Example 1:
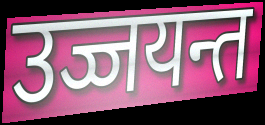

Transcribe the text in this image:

उज्जयन्त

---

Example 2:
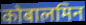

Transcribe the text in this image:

कोबालमिन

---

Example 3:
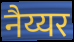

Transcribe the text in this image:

नैय्यर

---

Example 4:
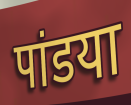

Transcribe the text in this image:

पांडया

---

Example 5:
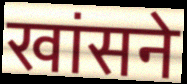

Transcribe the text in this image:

खांसने